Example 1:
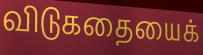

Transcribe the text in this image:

விடுகதையைக்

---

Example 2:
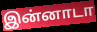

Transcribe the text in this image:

இன்னாடா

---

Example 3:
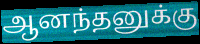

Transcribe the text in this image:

ஆனந்தனுக்கு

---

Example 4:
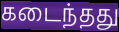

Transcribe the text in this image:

கடைந்தது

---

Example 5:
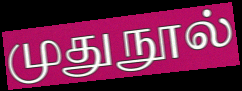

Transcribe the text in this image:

முதுநூல்